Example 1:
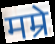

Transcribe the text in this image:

मम्रे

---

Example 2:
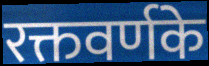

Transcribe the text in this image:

रक्तवर्णके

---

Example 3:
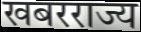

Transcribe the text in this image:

खबरराज्य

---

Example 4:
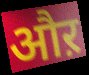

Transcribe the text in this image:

औऱ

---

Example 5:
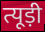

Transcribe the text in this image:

त्यूड़ी